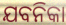
ଯବନିକା